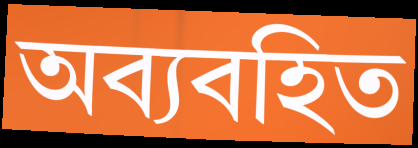
অব্যবহিত